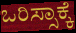
ಒರಿಸ್ಸಾಕ್ಕೆ